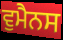
ਵੁਮੈਨਸ